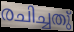
രചിച്ചതു്